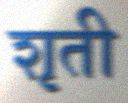
शृती